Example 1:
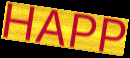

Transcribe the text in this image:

HAPP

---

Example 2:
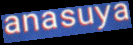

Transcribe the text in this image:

anasuya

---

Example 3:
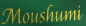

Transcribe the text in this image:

Moushumi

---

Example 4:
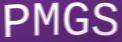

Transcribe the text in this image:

PMGS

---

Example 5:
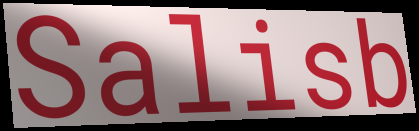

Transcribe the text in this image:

Salisb